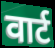
वार्ट